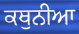
ਕਥੁਨੀਆ